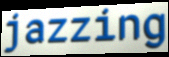
jazzing